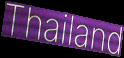
Thailand